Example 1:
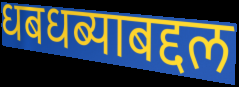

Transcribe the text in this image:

धबधब्याबद्दल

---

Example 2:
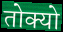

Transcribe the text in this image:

तोक्यो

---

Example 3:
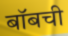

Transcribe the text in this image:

बॉबची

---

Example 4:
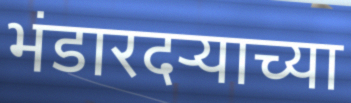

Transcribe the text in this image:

भंडारदर्‍याच्या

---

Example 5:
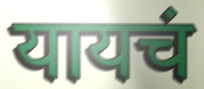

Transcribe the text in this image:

यायचं